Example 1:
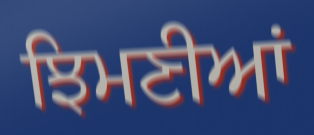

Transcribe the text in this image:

ਝਿਮਣੀਆਂ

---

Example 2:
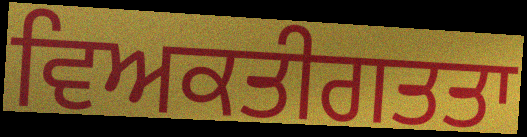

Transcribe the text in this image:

ਵਿਅਕਤੀਗਤਤਾ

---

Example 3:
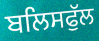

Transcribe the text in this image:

ਬਲਿਸਫੁੱਲ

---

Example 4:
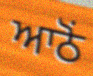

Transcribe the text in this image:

ਆਠੋਂ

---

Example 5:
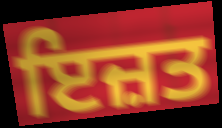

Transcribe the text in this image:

ਇਜ਼ਤ